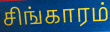
சிங்காரம்